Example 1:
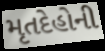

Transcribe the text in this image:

મૃતદેહોની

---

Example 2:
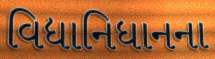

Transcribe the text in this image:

વિદ્યાનિધાનના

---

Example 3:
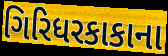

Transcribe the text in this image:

ગિરિધરકાકાના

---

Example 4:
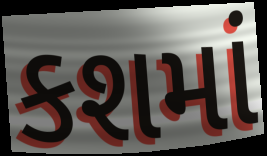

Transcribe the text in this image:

કશમાં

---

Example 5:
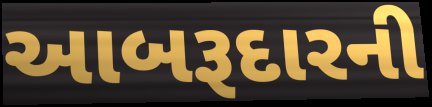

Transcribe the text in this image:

આબરૂદારની